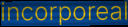
incorporeal